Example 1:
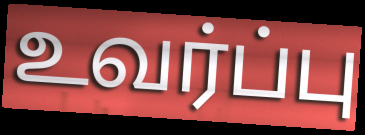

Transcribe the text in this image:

உவர்ப்பு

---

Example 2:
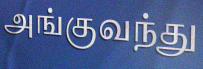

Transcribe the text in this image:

அங்குவந்து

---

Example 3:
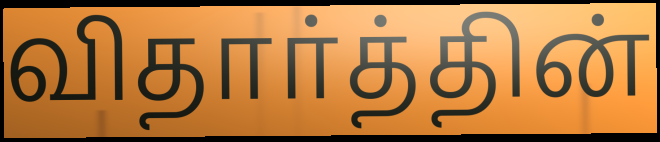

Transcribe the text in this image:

விதார்த்தின்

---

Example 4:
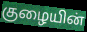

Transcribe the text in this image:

குழையின்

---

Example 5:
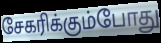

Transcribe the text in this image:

சேகரிக்கும்போது